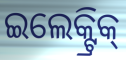
ଇଲେକ୍ଟ୍ରିକ୍